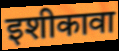
इशीकावा